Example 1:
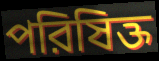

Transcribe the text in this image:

পরিষিক্ত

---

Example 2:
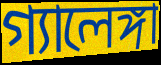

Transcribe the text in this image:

গ্যালেঙ্গা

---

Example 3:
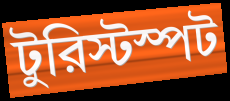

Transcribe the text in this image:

টুরিস্টস্পট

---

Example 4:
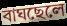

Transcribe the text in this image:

বাঘছেলে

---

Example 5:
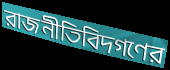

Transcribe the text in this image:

রাজনীতিবিদগণের